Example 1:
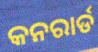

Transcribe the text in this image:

କନରାର୍ଡ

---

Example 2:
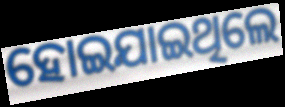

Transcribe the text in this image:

ହୋଇଯାଇଥିଲେ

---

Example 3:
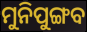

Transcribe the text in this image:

ମୁନିପୁଙ୍ଗବ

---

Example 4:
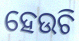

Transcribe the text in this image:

ହେଉଚି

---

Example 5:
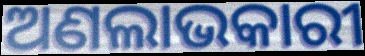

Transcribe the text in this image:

ଅଣଲାଭକାରୀ